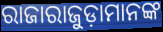
ରାଜାରାଜୁଡ଼ାମାନଙ୍କ